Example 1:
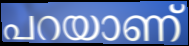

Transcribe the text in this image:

പറയാണ്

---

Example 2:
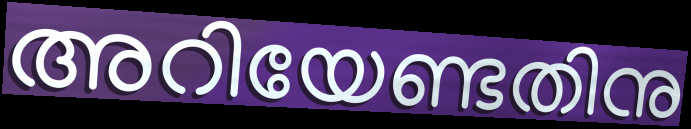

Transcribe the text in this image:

അറിയേണ്ടതിനു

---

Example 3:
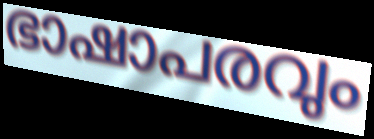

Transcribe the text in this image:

ഭാഷാപരവും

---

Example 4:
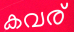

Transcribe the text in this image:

കവര്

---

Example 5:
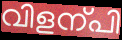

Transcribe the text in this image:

വിളന്പി